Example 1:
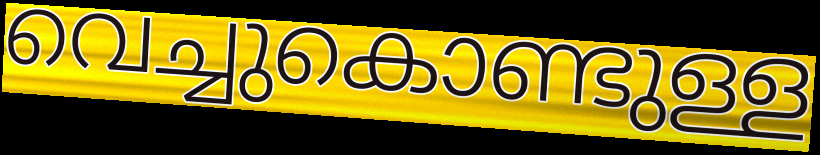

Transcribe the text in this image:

വെച്ചുകൊണ്ടുള്ള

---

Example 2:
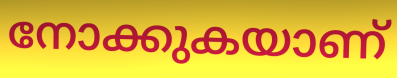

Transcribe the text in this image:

നോക്കുകയാണ്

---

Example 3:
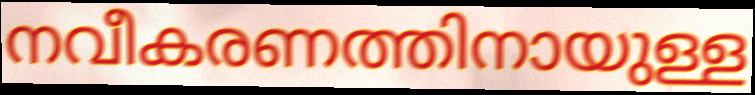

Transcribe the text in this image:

നവീകരണത്തിനായുള്ള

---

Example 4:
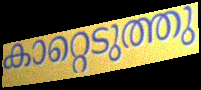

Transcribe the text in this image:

കാറ്റെടുത്തു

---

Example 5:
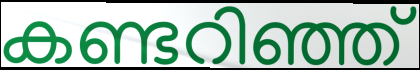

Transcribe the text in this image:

കണ്ടറിഞ്ഞ്